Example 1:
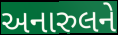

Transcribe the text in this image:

અનારુલને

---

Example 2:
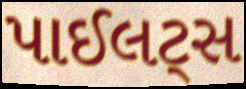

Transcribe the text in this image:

પાઈલટ્સ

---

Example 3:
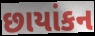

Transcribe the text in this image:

છાયાંકન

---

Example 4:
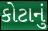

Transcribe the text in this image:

કોટાનું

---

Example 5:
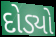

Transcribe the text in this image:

દોડ્યો